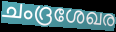
ചംദ്രശേഖര